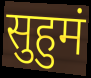
सुहुमं